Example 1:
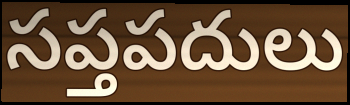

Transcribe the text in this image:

సప్తపదులు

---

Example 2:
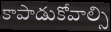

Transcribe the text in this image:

కాపాడుకోవాల్సి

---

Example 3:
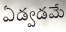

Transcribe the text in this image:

ఏడ్వడమే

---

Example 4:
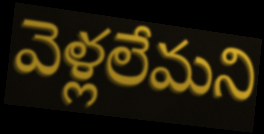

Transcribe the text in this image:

వెళ్లలేమని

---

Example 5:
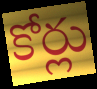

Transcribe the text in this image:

కోర్లు